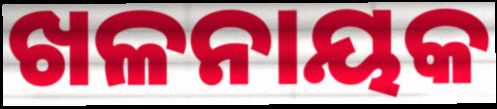
ଖଳନାୟକ